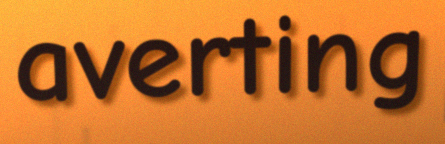
averting